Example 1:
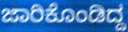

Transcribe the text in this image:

ಜಾರಿಕೊಂಡಿದ್ದ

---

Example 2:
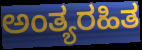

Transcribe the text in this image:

ಅಂತ್ಯರಹಿತ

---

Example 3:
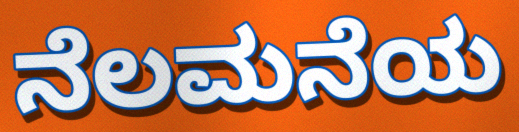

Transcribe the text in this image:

ನೆಲಮನೆಯ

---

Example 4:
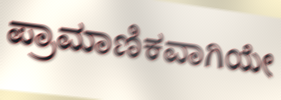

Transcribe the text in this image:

ಪ್ರಾಮಾಣಿಕವಾಗಿಯೇ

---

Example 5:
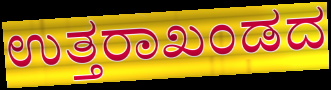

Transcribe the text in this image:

ಉತ್ತರಾಖಂಡದ